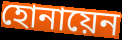
হোনায়েন